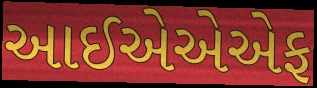
આઈએએએફ